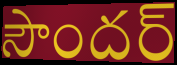
సౌందర్